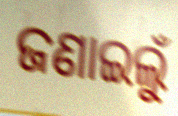
ଜଣାଇଲୁଁ